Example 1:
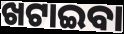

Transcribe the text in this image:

ଖଟାଇବା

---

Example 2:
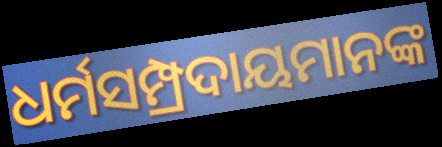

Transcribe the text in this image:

ଧର୍ମସମ୍ପ୍ରଦାୟମାନଙ୍କ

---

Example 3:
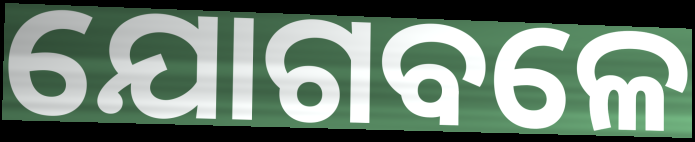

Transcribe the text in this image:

ଯୋଗବଳେ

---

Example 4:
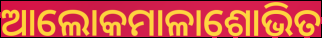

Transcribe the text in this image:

ଆଲୋକମାଳାଶୋଭିତ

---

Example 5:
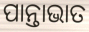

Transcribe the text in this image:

ପାନ୍ତାଭାତ